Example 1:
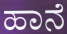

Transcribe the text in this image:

ಹಾನೆ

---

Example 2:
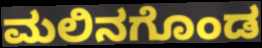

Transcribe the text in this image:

ಮಲಿನಗೊಂಡ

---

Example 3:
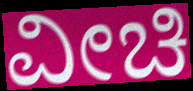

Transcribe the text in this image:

ವೀಚಿ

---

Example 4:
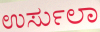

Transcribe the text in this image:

ಉರ್ಸುಲಾ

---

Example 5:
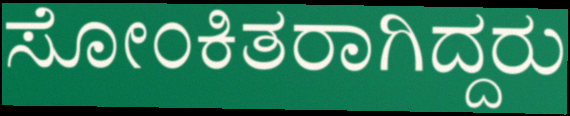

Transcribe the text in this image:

ಸೋಂಕಿತರಾಗಿದ್ದರು